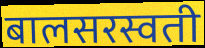
बालसरस्वती